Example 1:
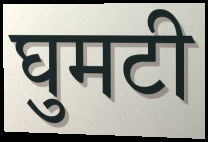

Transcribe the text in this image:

घुमटी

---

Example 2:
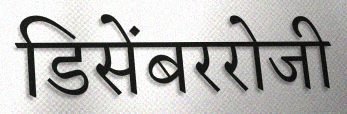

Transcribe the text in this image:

डिसेंबररोजी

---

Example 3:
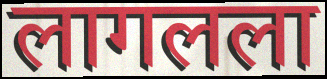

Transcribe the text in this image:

लागलला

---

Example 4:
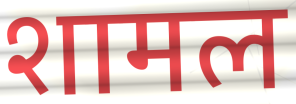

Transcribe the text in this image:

शामल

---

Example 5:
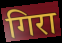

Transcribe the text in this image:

गिरा